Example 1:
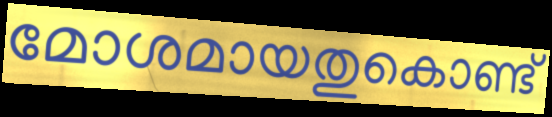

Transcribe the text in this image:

മോശമായതുകൊണ്ട്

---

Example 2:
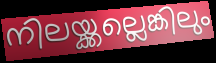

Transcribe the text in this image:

നിലയ്ക്കല്ലെങ്കിലും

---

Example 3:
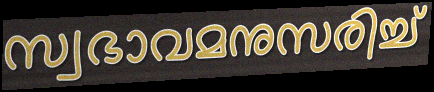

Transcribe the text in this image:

സ്വഭാവമനുസരിച്ച്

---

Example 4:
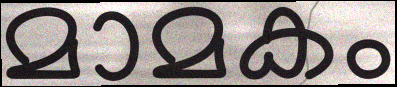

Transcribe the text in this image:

മാമകം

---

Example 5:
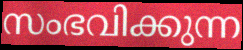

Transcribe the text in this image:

സംഭവിക്കുന്ന